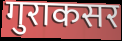
गुराकसर